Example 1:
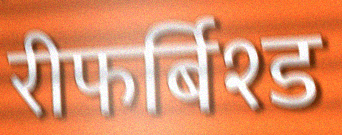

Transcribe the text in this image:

रीफर्बिश्ड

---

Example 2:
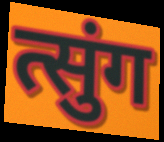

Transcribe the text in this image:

त्सुंग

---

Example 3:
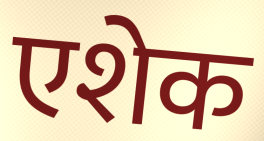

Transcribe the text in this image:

एशेक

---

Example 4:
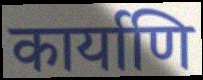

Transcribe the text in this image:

कार्याणि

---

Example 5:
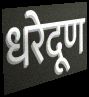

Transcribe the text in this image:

धरेदूण